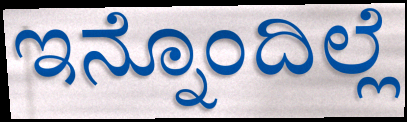
ಇನ್ನೊಂದಿಲ್ಲೆ